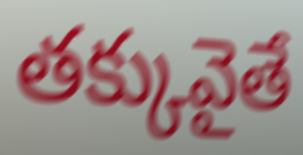
తక్కువైతే